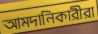
আমদানিকারীরা